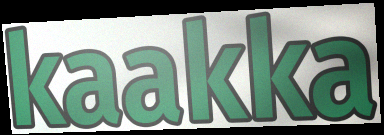
kaakka